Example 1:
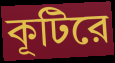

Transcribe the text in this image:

কূটিরে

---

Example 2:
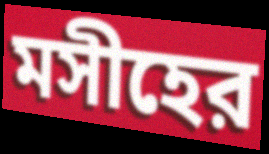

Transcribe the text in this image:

মসীহের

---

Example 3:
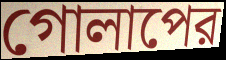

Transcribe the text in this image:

গোলাপের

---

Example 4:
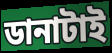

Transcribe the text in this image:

ডানাটাই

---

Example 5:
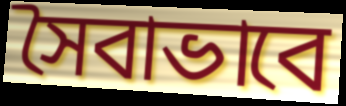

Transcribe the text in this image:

সৈবাভাবে